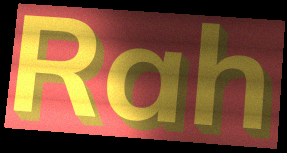
Rah